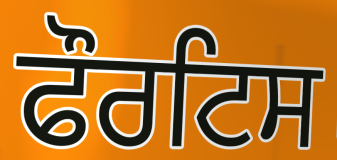
ਫੌਰਟਿਸ